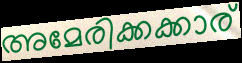
അമേരിക്കക്കാര്